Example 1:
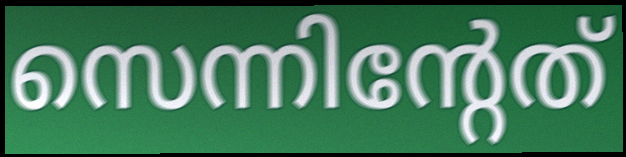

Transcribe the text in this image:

സെന്നിന്റേത്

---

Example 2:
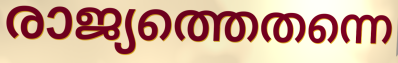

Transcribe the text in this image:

രാജ്യത്തെതന്നെ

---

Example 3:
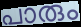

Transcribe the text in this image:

പാരും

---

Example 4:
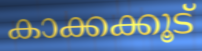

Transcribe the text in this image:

കാക്കക്കൂട്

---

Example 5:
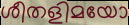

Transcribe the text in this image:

ശീതളിമയോ